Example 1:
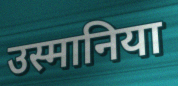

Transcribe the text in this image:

उस्मानिया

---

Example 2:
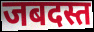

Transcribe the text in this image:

जबदस्त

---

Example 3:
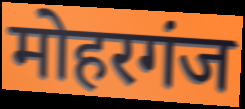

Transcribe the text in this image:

मोहरगंज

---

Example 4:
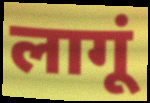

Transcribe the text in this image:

लागूं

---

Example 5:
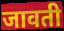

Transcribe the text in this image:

जावती